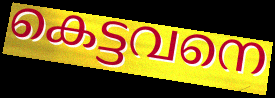
കെട്ടവനെ